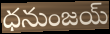
ధనుంజయ్